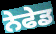
ਨੇਫੇਡ